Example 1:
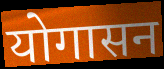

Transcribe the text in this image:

योगासन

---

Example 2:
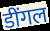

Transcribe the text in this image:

डींगल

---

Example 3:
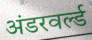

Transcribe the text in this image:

अंडरवर्ल्‍ड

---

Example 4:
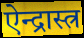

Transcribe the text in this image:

ऐन्द्रास्त्र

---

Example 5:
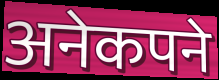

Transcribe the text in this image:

अनेकपने